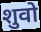
शुवो